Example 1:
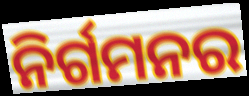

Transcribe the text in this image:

ନିର୍ଗମନର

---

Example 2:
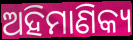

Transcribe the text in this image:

ଅହିମାଣିକ୍ୟ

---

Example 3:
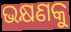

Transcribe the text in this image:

ଭକ୍ଷଣକୁ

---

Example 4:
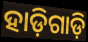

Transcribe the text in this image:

ହାଡ଼ିଗାଡ଼ି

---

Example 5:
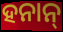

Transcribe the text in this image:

ହନାନ୍